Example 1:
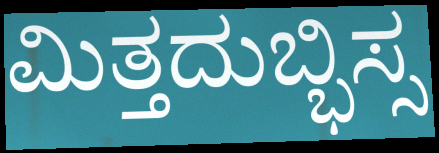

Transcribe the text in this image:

ಮಿತ್ತದುಬ್ಭಿಸ್ಸ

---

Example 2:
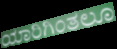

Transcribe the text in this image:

ಯಾರಿಗಿಂತಲೂ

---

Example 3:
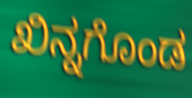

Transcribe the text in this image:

ಖಿನ್ನಗೊಂಡ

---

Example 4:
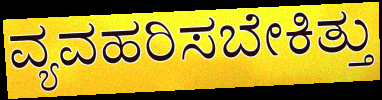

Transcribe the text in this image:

ವ್ಯವಹರಿಸಬೇಕಿತ್ತು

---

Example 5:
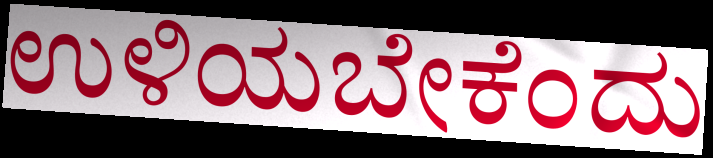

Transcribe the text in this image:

ಉಳಿಯಬೇಕೆಂದು